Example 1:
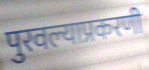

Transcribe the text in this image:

पुरवल्याप्रकरणी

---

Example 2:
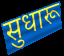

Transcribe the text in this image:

सुधारू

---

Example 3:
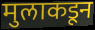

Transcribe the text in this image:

मुलाकडून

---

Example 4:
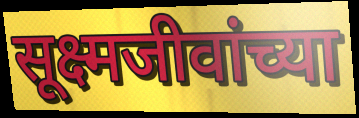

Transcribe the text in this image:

सूक्ष्मजीवांच्या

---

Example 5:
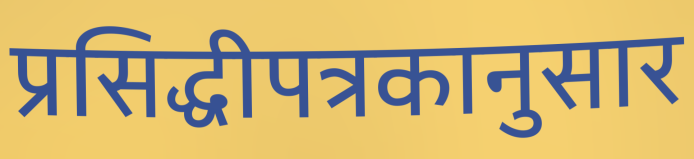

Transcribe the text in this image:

प्रसिद्धीपत्रकानुसार